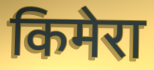
किमेरा